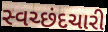
સ્વચ્છંદચારી